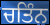
ਚਤਿੰਨ